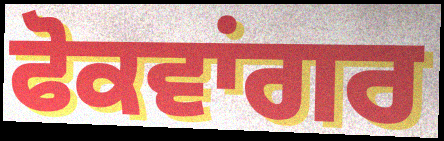
ਫੋਕਵਾਂਗਰ